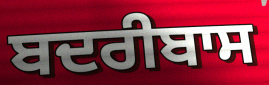
ਬਦਰੀਬਾਸ